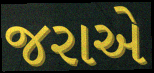
જરાએ